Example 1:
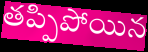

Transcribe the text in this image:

తప్పిపోయిన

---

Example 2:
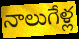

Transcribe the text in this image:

నాలుగేళ్ల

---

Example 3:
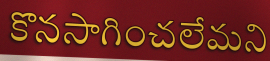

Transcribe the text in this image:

కొనసాగించలేమని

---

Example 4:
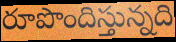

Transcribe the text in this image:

రూపొందిస్తున్నది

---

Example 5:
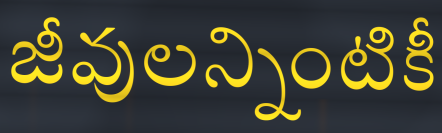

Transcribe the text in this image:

జీవులన్నింటికీ